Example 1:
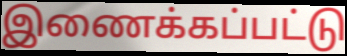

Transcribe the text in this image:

இணைக்கப்பட்டு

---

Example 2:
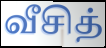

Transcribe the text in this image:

வீசித்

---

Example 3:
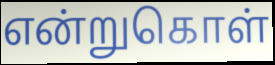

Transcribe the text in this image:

என்றுகொள்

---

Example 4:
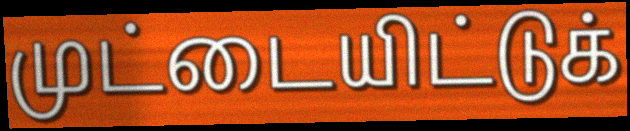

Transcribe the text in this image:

முட்டையிட்டுக்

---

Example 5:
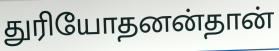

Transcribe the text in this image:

துரியோதனன்தான்